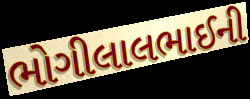
ભોગીલાલભાઈની